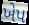
ખેપ